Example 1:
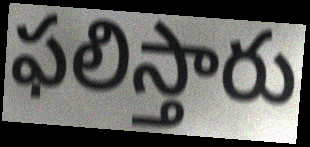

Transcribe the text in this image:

ఫలిస్తారు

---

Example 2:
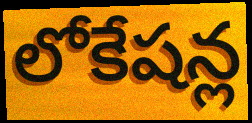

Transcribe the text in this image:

లోకేషన్ల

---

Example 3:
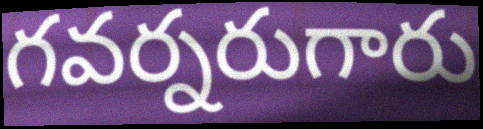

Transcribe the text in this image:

గవర్నరుగారు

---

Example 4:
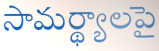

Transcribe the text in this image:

సామర్థ్యాలపై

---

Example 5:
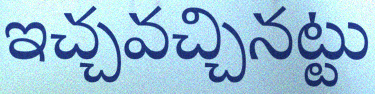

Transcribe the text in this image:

ఇచ్చవచ్చినట్టు